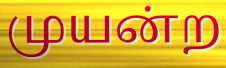
முயன்ற